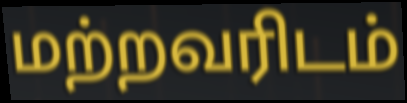
மற்றவரிடம்